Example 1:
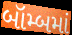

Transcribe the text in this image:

બૉમ્બમાં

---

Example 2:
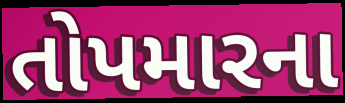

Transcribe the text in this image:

તોપમારના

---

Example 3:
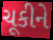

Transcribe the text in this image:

ચૂકીને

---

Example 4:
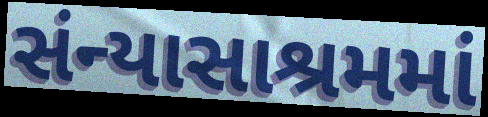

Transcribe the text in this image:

સંન્યાસાશ્રમમાં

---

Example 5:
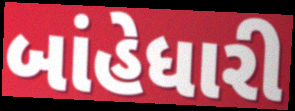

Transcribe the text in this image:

બાંહેધારી